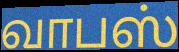
வாபஸ்